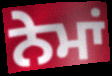
ਨੇਮਾਂ